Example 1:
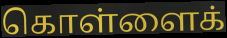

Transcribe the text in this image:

கொள்ளைக்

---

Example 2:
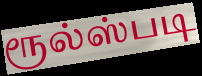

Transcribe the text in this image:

ரூல்ஸ்படி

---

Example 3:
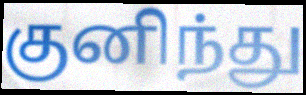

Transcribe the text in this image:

குனிந்து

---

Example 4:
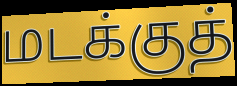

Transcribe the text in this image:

மடக்குத்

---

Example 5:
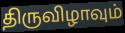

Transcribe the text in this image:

திருவிழாவும்